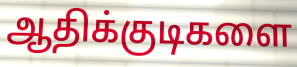
ஆதிக்குடிகளை